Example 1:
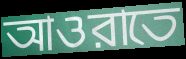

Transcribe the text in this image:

আওরাতে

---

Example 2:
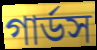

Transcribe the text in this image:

গার্ডস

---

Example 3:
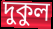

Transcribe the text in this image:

দুকুল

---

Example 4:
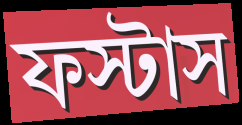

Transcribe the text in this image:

ফস্টাস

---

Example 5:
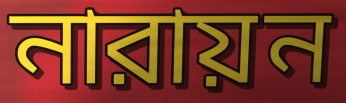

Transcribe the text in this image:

নারায়ন